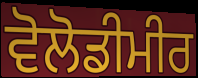
ਵੋਲੋਡੀਮੀਰ